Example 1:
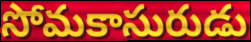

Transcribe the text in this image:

సోమకాసురుడు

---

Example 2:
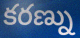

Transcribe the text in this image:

కరణ్ను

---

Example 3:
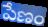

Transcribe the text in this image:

పేణం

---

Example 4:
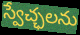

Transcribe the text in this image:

స్వేచ్ఛలను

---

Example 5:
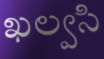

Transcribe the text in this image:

ఖల్వసి